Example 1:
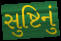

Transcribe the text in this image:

સુષ્ટિનું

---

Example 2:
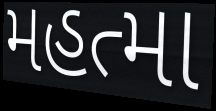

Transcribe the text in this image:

મહત્મા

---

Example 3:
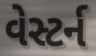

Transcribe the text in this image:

વેસ્ટર્ન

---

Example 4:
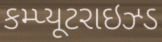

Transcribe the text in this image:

કમ્પ્યૂટરાઇઝ્ડ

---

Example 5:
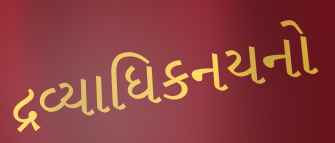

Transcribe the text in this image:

દ્રવ્યાધિકનયનો